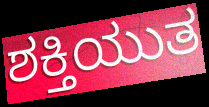
ಶಕ್ತಿಯುತ